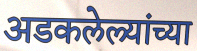
अडकलेल्यांच्या